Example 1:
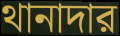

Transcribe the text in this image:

থানাদার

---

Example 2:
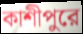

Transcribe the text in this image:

কাশীপুরে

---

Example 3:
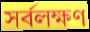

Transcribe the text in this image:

সর্বলক্ষণ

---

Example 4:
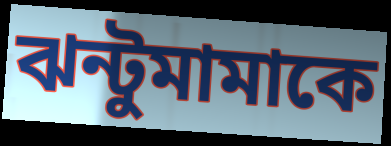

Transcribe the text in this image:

ঝন্টুমামাকে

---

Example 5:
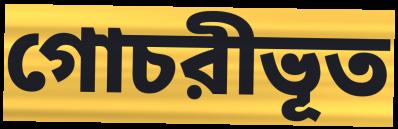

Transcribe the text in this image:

গোচরীভূত